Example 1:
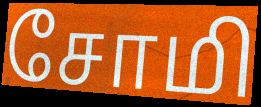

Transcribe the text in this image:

சோமி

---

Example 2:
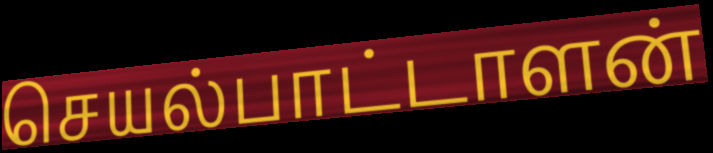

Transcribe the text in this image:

செயல்பாட்டாளன்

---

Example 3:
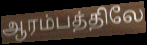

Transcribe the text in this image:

ஆரம்பத்திலே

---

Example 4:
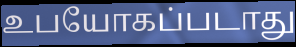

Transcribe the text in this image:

உபயோகப்படாது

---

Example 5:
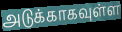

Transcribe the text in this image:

அடுக்காகவுள்ள